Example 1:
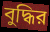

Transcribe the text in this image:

বুদ্ধির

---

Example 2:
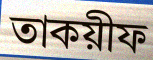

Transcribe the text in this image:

তাকয়ীফ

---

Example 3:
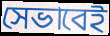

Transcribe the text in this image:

সেভাবেই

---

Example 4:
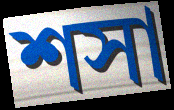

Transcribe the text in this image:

শসা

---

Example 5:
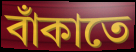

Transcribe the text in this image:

বাঁকাতে